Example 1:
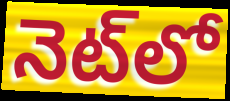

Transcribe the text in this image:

నెట్‌లో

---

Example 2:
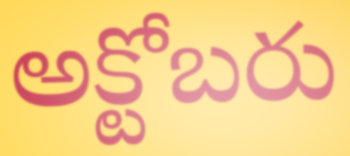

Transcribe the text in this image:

అక్టోబరు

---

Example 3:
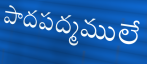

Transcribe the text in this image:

పాదపద్మములే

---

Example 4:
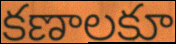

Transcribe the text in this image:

కణాలకూ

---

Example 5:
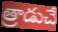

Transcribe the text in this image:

త్రాడుచే